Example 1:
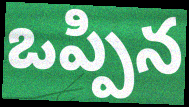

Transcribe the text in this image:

ఒప్పిన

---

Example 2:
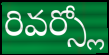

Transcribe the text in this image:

రివర్స్లో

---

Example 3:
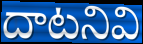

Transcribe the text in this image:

దాటనివి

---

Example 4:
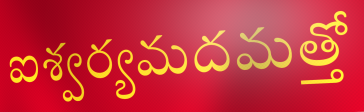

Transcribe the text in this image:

ఐశ్వర్యమదమత్తో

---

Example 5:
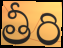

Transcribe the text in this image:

తీరి